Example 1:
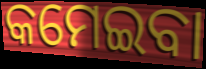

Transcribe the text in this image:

କମେଇବା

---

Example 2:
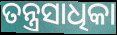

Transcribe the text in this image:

ତନ୍ତ୍ରସାଧିକା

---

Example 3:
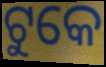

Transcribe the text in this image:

ଟୁକେ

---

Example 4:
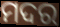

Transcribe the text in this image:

ମଦର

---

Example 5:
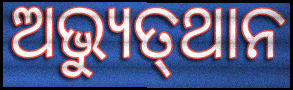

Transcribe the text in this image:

ଅଭ୍ୟୁତ୍‌ଥାନ